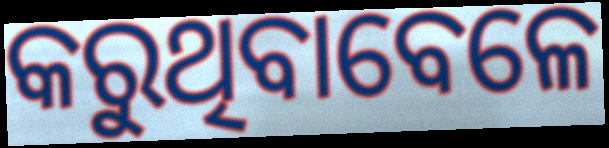
କରୁଥିବାବେଳେ